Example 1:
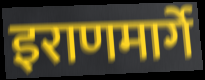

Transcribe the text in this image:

इराणमार्गे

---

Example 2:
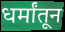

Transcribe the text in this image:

धर्मांतून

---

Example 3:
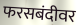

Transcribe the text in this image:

फरसबंदीवर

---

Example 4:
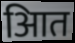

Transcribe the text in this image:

आित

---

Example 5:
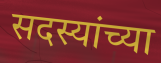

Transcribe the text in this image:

सदस्यांच्या